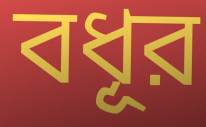
বধূর